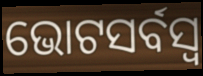
ଭୋଟସର୍ବସ୍ବ